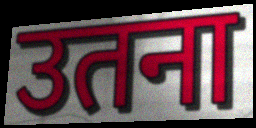
उतना